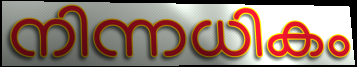
നിന്നധികം